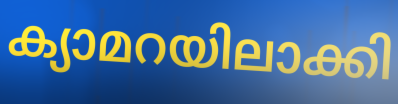
ക്യാമറയിലാക്കി